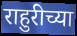
राहुरीच्या